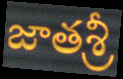
జాతశ్రీ